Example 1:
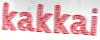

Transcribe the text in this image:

kakkai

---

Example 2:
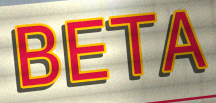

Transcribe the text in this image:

BETA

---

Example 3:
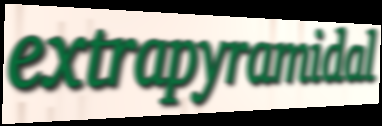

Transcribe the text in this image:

extrapyramidal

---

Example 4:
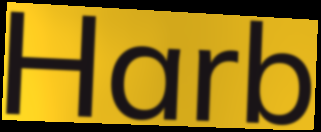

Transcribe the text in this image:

Harb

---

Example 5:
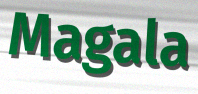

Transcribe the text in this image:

Magala